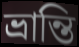
ভ্রান্তি